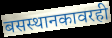
बसस्थानकावरही